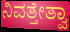
ನಿವತ್ತೇತ್ವಾ